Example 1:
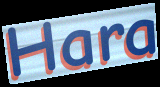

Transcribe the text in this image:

Hara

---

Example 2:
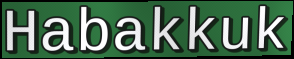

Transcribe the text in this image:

Habakkuk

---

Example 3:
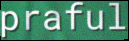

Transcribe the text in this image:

praful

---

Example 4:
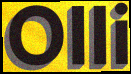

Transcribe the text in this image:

Olli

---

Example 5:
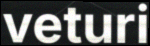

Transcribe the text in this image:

veturi